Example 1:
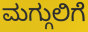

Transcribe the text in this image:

ಮಗ್ಗುಲಿಗೆ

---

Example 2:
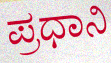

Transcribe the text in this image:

ಪ್ರಧಾನಿ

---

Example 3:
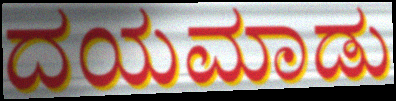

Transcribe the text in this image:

ದಯಮಾಡು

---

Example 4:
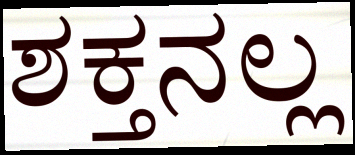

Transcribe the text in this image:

ಶಕ್ತನಲ್ಲ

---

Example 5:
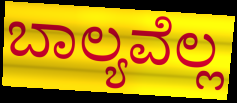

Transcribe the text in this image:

ಬಾಲ್ಯವೆಲ್ಲ